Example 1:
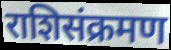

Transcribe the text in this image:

राशिसंक्रमण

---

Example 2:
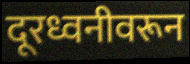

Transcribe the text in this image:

दूरध्वनीवरून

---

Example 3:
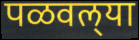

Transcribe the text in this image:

पळवल्या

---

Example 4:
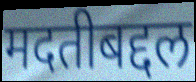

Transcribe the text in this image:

मदतीबद्दल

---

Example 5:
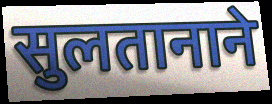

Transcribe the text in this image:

सुलतानाने